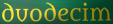
duodecim